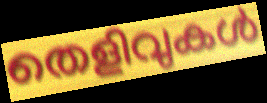
തെളിവുകൾ